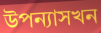
উপন্যাসখন